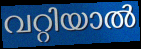
വറ്റിയാൽ